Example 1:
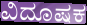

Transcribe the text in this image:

ವಿದೂಷಕ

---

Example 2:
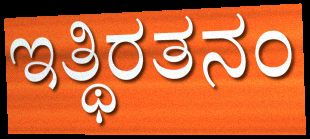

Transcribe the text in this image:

ಇತ್ಥಿರತನಂ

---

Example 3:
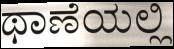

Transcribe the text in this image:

ಥಾಣೆಯಲ್ಲಿ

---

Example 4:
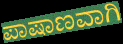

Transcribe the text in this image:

ಪಾಷಾಣವಾಗಿ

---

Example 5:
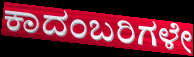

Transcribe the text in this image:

ಕಾದಂಬರಿಗಳೇ